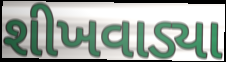
શીખવાડ્યા